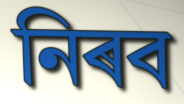
নিৰব